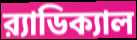
র‍্যাডিক্যাল